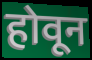
होवून